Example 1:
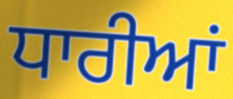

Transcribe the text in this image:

ਧਾਰੀਆਂ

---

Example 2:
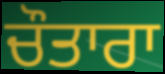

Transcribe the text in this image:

ਚੌਤਾਰਾ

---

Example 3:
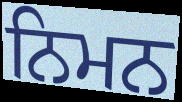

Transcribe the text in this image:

ਨਿਮਨ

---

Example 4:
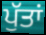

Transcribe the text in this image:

ਪੁੱਤਾਂ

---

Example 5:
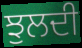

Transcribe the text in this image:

ਝੁਲਦੀ